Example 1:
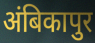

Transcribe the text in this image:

अंबिकापुर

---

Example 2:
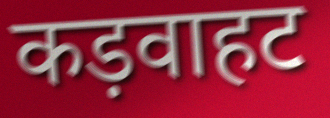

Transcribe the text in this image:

कड़वाहट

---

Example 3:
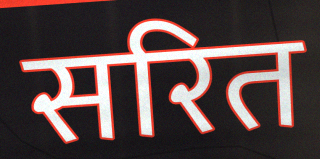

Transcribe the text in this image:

सरित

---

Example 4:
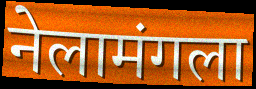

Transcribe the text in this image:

नेलामंगला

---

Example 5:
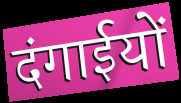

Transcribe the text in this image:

दंगाईयों